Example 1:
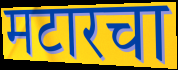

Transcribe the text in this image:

मटारचा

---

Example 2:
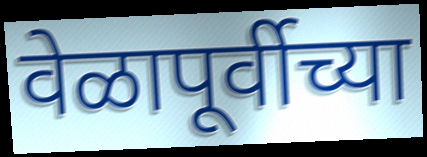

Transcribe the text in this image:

वेळापूर्वीच्या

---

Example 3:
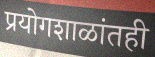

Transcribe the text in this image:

प्रयोगशाळांतही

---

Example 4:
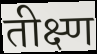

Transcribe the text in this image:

तीक्ष्ण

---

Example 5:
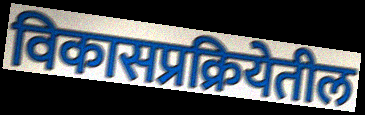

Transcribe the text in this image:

विकासप्रक्रियेतील